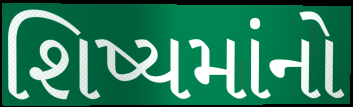
શિષ્યમાંનો